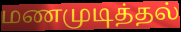
மணமுடித்தல்